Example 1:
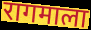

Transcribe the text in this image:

रागमाला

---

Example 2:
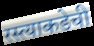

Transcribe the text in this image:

रस्त्याकडेची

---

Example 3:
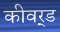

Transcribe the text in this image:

कीवर्ड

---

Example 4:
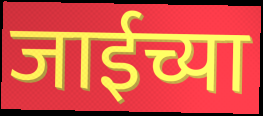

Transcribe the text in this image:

जाईच्या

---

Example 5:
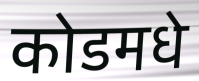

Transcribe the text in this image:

कोडमधे